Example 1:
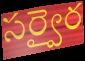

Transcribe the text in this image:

సర్వైర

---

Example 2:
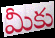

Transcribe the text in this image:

మీకు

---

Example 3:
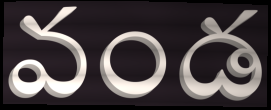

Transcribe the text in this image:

వండ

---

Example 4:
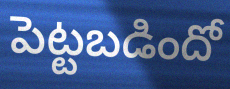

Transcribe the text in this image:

పెట్టబడిందో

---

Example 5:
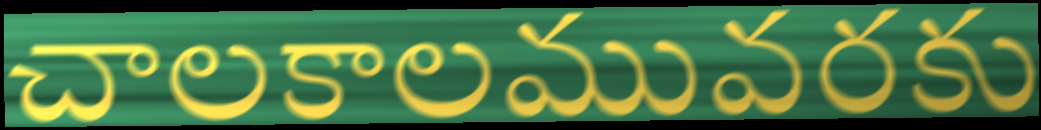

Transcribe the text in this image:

చాలకాలమువరకు